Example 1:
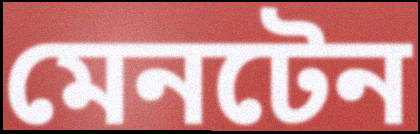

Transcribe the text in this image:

মেনটেন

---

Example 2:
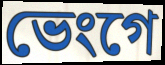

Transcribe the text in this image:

ভেংগে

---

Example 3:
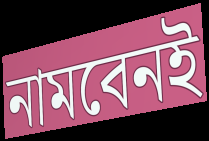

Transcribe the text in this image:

নামবেনই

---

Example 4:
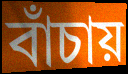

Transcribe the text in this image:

বাঁচায়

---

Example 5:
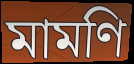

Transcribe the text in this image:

মামণি